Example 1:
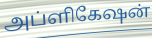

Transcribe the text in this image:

அப்ளிகேஷன்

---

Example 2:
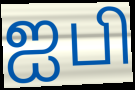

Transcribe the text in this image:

ஐபி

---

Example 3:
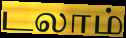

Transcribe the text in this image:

டலாம்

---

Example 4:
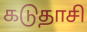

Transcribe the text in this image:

கடுதாசி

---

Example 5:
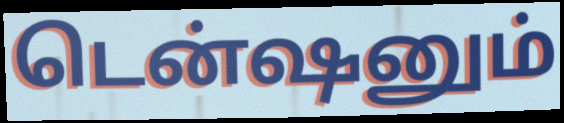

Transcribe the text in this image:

டென்ஷனும்